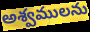
అశ్వములను